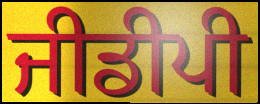
ਜੀਡੀਪੀ